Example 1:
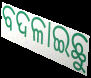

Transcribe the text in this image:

ବଦଳାଇଛୁ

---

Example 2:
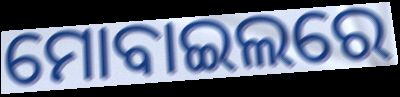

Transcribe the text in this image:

ମୋବାଇଲରେ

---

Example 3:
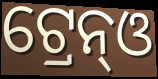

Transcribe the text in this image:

ଟ୍ରେନ୍ଓ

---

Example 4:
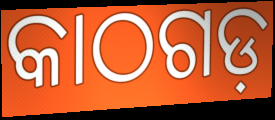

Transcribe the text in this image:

କାଠଗଡ଼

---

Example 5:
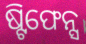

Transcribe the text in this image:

ଷ୍ଟିଫେନ୍ସ